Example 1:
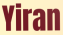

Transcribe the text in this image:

Yiran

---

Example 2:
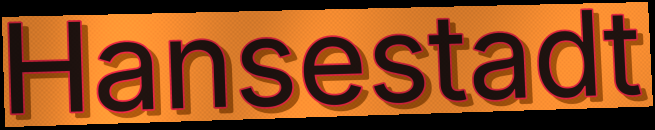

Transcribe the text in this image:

Hansestadt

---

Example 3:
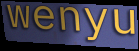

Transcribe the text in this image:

wenyu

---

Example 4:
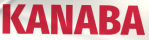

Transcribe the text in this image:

KANABA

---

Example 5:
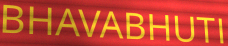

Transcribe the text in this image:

BHAVABHUTI